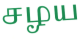
சழய